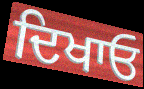
ਦਿਖਾਓ